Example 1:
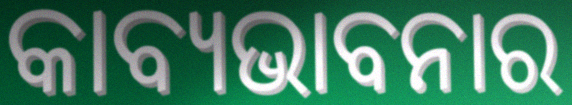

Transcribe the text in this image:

କାବ୍ୟଭାବନାର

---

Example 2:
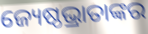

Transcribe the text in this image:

ଜ୍ୟେଷ୍ଠଭ୍ରାତାଙ୍କର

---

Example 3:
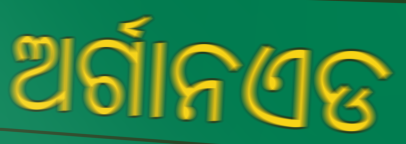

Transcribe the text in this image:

ଅର୍ଗାନଏଡ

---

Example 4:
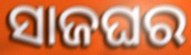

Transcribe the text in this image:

ସାଜଘର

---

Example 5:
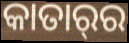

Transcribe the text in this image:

କାତାର୍‌ର